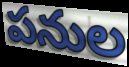
పనుల